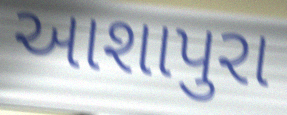
આશાપુરા